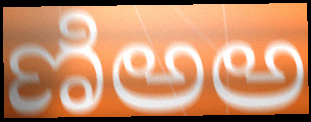
ణిఅఅ